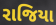
રાજિયા